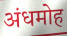
अंधमोह